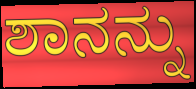
ಶಾನನ್ನು